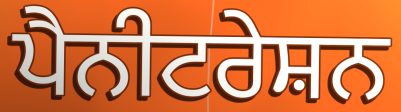
ਪੈਨੀਟਰੇਸ਼ਨ